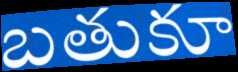
బతుకూ